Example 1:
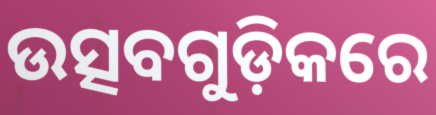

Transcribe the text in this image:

ଉତ୍ସବଗୁଡ଼ିକରେ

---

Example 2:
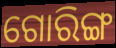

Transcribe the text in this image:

ଗୋରିଙ୍ଗ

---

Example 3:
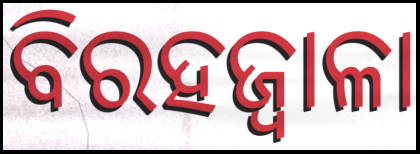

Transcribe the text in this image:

ବିରହଜ୍ୱାଳା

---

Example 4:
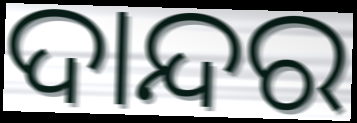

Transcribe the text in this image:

ଦାନ୍ଦର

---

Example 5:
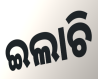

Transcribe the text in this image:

ଇଲାଚି